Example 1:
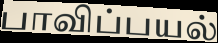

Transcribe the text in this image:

பாவிப்பயல்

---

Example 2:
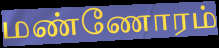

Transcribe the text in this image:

மண்ணோரம்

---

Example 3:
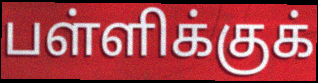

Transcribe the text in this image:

பள்ளிக்குக்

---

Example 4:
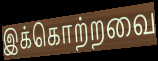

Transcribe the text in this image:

இக்கொற்றவை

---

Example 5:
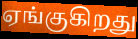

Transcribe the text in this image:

ஏங்குகிறது